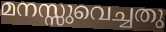
മനസ്സുവെച്ചതു